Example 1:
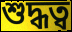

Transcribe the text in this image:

শুদ্ধত্ব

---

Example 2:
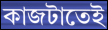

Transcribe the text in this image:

কাজটাতেই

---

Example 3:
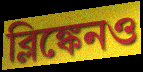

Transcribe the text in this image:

ব্লিঙ্কেনও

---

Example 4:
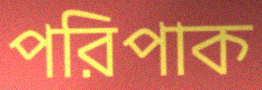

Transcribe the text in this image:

পরিপাক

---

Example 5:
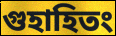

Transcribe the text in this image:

গুহাহিতং